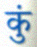
कुं